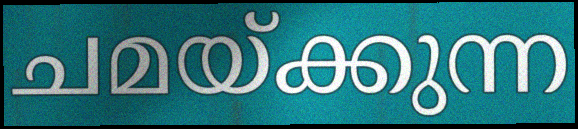
ചമയ്ക്കുന്ന